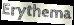
Erythema